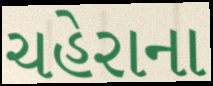
ચહેરાના